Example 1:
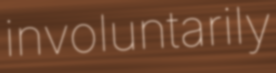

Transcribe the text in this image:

involuntarily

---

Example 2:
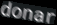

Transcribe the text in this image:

donar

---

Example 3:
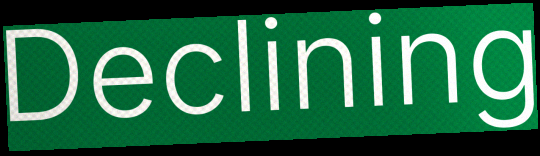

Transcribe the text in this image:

Declining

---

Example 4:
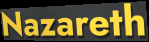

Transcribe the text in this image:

Nazareth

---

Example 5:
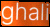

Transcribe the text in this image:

ghali